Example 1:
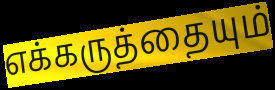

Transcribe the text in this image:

எக்கருத்தையும்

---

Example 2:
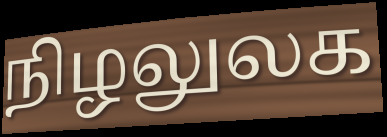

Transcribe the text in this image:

நிழலுலக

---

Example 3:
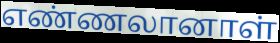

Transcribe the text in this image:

எண்ணலானாள்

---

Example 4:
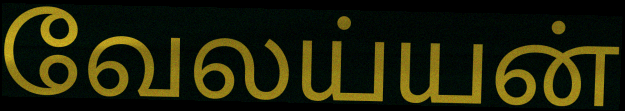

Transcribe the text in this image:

வேலய்யன்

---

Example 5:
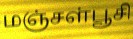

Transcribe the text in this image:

மஞ்சள்பூசி